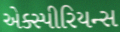
એક્સ્પીરિયન્સ